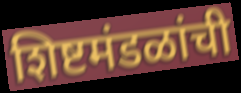
शिष्टमंडळांची